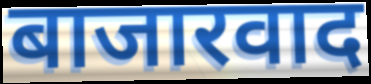
बाजारवाद